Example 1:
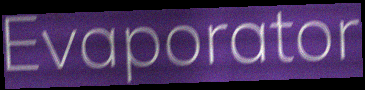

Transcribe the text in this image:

Evaporator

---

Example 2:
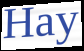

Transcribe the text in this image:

Hay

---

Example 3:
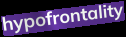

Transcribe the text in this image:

hypofrontality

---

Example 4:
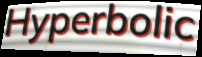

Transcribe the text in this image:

Hyperbolic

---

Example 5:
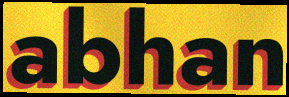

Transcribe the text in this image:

abhan